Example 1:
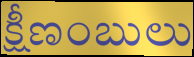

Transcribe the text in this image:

క్షీణంబులు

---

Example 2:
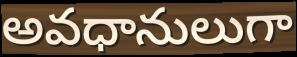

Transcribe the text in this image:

అవధానులుగా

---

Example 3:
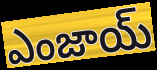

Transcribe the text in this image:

ఎంజాయ్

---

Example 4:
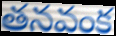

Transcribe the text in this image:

తనవంక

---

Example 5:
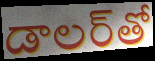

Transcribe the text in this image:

డాలర్‌తో